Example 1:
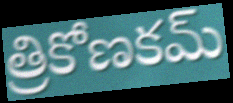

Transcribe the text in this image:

త్రికోణకమ్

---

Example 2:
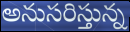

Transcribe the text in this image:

అనుసరిస్తున్న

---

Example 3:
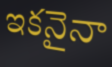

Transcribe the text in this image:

ఇకనైనా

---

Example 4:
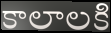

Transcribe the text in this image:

కాలాలకి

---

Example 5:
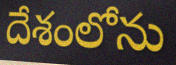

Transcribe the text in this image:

దేశంలోను